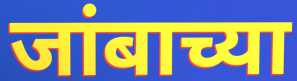
जांबाच्या